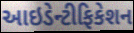
આઇડેન્ટીફિકેશન